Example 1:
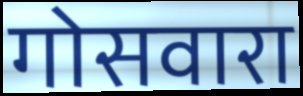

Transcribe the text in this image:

गोसवारा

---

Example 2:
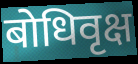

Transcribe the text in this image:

बोधिवृक्ष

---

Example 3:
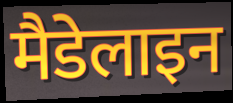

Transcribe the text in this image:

मैडेलाइन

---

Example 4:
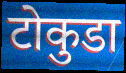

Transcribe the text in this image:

टोकुडा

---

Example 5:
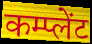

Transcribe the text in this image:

कम्प्लेंट